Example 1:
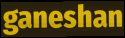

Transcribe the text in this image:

ganeshan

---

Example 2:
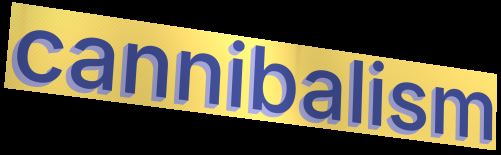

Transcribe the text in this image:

cannibalism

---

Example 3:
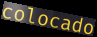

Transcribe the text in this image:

colocado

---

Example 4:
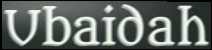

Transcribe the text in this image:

Ubaidah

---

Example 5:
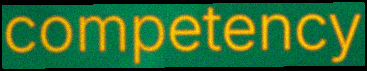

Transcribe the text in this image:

competency